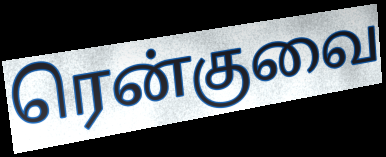
ரென்குவை